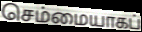
செம்மையாகப்